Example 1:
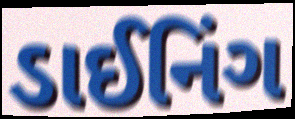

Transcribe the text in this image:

ડાઈનિંગ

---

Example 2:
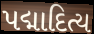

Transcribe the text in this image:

પદ્માદિત્ય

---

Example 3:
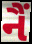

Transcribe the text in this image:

નૈં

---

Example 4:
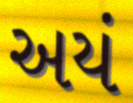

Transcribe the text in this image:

અયં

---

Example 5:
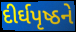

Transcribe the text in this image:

દીર્ઘપૃષ્ઠને